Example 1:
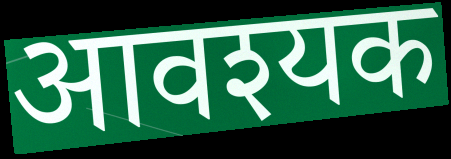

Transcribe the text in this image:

आवश्यक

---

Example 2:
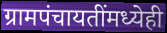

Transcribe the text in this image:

ग्रामपंचायतींमध्येही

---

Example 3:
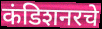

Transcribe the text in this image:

कंडिशनरचे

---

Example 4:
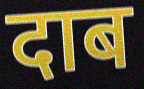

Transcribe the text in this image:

दाब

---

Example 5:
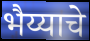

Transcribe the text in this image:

भैय्याचे